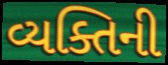
વ્યક્તિની